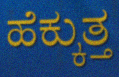
ಹೆಕ್ಕುತ್ತ